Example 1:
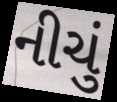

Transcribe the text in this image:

નીચું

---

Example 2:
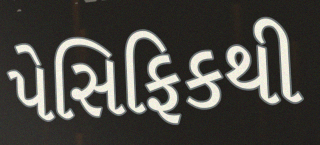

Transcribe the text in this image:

પેસિફિકથી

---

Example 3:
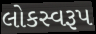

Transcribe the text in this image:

લોકસ્વરૂપ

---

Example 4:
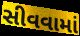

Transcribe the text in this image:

સીવવામાં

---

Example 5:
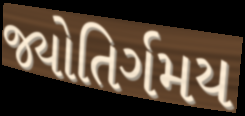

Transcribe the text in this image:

જ્યોતિર્ગમય